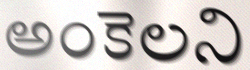
అంకెలని